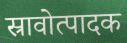
स्रावोत्पादक